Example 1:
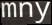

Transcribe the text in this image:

mny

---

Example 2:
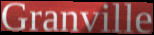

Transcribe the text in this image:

Granville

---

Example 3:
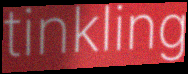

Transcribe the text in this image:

tinkling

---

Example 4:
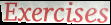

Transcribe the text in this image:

Exercises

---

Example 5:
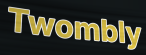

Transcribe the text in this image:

Twombly